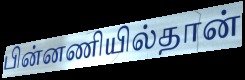
பின்னணியில்தான்